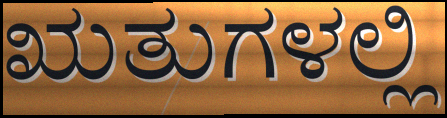
ಋತುಗಳಲ್ಲಿ